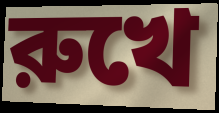
রুখে